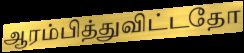
ஆரம்பித்துவிட்டதோ